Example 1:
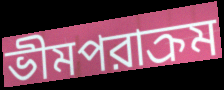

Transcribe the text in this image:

ভীমপরাক্রম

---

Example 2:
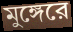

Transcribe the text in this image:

মুঙ্গেরে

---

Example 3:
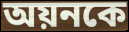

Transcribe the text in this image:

অয়নকে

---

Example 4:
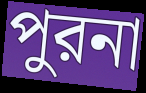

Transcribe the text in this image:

পুরনা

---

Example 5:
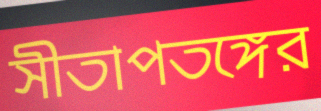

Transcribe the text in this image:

সীতাপতঙ্গের